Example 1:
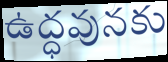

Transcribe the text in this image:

ఉద్ధవునకు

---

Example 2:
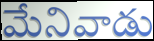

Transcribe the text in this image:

మేనివాడు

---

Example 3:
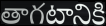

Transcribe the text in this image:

తాగటానికి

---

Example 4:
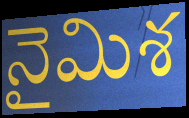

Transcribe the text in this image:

నైమిశ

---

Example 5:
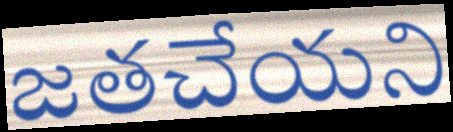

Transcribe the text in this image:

జతచేయని